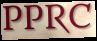
PPRC